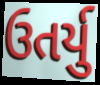
ઉતર્યુ